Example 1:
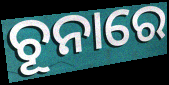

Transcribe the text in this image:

ଚୂନାରେ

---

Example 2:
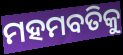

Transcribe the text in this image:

ମହମବତିକୁ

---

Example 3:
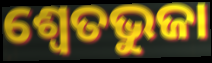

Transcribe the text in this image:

ଶ୍ଵେତଭୁଜା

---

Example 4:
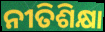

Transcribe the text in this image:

ନୀତିଶିକ୍ଷା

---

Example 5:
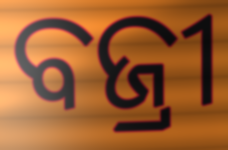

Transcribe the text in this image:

ବଜ୍ରୀ